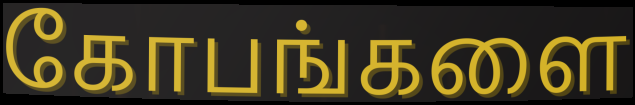
கோபங்களை